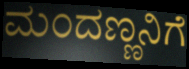
ಮಂದಣ್ಣನಿಗೆ